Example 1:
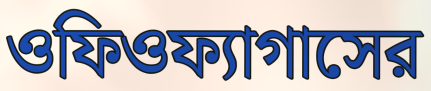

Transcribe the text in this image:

ওফিওফ্যাগাসের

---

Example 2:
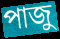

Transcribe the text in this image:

পাজু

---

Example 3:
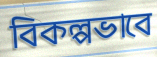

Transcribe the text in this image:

বিকল্পভাবে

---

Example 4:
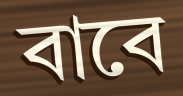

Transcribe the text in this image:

বাবে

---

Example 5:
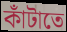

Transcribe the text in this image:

কাঁটাতে